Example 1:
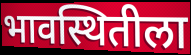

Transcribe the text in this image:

भावस्थितीला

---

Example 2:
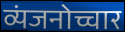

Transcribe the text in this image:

व्यंजनोच्चार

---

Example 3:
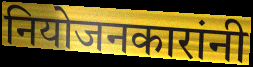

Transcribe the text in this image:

नियोजनकारांनी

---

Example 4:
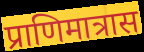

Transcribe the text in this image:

प्राणिमात्रास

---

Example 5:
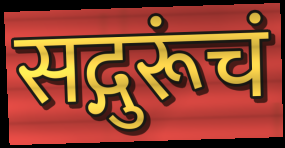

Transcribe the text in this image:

सद्गुरूंचं